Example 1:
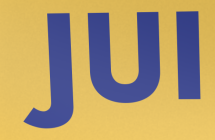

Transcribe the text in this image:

JUI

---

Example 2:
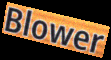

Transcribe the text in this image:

Blower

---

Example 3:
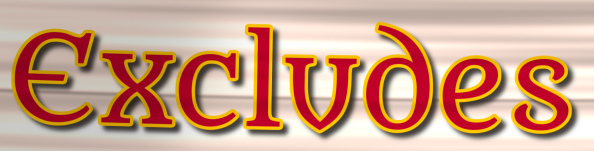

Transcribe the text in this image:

Excludes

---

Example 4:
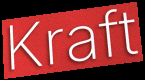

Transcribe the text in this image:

Kraft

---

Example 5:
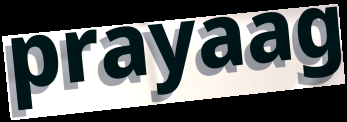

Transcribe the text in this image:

prayaag